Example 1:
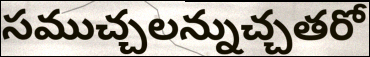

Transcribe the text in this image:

సముచ్చలన్నుచ్చతరో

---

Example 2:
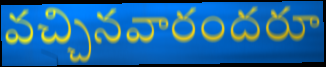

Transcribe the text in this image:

వచ్చినవారందరూ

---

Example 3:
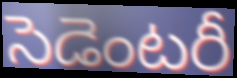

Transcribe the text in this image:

సెడెంటరీ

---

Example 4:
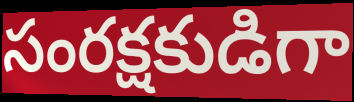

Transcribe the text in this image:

సంరక్షకుడిగా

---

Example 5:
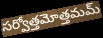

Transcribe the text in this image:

సర్వోత్తమోత్తమమ్